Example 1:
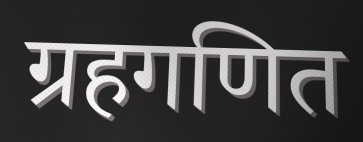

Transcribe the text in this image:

ग्रहगणित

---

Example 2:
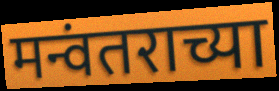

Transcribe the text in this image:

मन्वंतराच्या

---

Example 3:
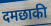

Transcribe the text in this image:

दमछाकी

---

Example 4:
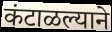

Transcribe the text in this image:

कंटाळल्याने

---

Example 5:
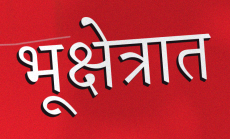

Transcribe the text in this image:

भूक्षेत्रात